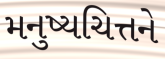
મનુષ્યચિત્તને